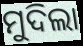
ମୁଦିଲା